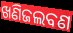
ଖଣିଜଲବଣ